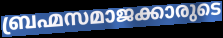
ബ്രഹ്മസമാജക്കാരുടെ